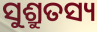
ସୁଶ୍ରୁତସ୍ୟ